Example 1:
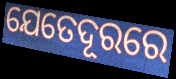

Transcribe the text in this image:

ଯେତେଦୂରରେ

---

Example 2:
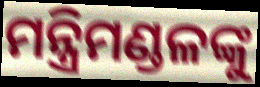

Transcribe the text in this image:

ମନ୍ତ୍ରିମଣ୍ଡଳଙ୍କୁ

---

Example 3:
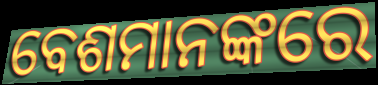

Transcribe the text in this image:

ବେଶମାନଙ୍କରେ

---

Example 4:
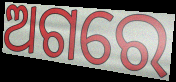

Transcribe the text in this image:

ଅଗରେ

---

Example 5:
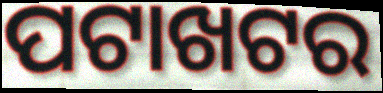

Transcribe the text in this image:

ପଟାଖଟର